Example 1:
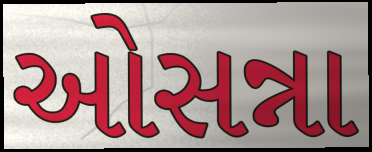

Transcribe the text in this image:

ઓસન્ના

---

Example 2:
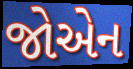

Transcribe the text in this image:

જોએન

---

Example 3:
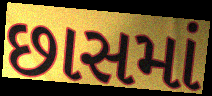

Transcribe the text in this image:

છાસમાં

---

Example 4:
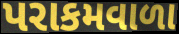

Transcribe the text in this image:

પરાકમવાળા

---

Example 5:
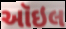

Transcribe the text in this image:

ઑઇલ